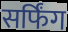
सर्फिंग